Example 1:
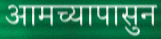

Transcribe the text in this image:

आमच्यापासुन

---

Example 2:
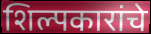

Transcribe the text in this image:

शिल्पकारांचे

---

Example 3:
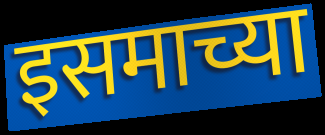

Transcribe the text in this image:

इसमाच्या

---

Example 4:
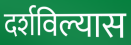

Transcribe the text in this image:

दर्शविल्यास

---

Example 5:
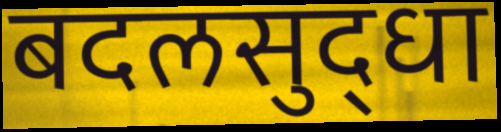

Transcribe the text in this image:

बदलसुद्धा